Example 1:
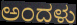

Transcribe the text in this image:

ಅಂದಳು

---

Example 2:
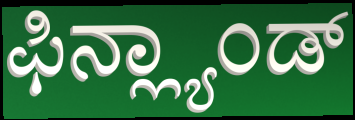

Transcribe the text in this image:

ಫಿನ್ಲ್ಯಾಂಡ್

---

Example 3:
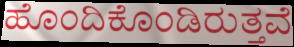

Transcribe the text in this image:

ಹೊಂದಿಕೊಂಡಿರುತ್ತವೆ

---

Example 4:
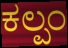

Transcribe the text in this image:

ಕಲ್ಪಂ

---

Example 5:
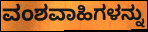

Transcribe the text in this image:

ವಂಶವಾಹಿಗಳನ್ನು